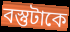
বস্তুটাকে